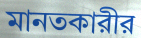
মানতকারীর